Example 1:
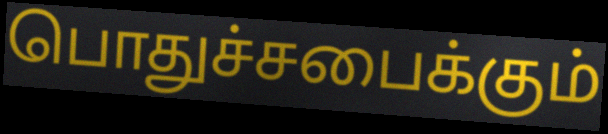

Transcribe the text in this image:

பொதுச்சபைக்கும்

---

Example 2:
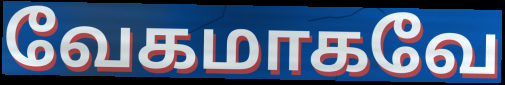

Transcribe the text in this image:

வேகமாகவே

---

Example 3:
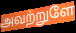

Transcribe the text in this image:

அவற்றுளே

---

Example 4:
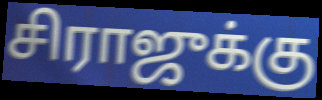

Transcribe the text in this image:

சிராஜுக்கு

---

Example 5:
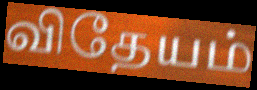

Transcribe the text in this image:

விதேயம்